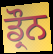
ਡ੍ਰੌਨ